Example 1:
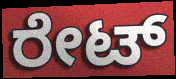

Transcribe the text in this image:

ರೇಟ್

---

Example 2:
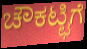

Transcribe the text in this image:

ಚೌಕಟ್ಟಿಗೆ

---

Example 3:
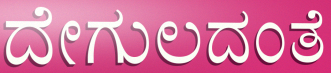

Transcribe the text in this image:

ದೇಗುಲದಂತೆ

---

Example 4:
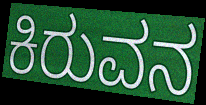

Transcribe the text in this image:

ಕಿರುವನ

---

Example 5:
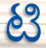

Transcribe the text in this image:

ಟಿ